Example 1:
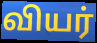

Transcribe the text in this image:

வியர்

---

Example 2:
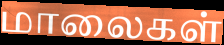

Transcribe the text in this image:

மாலைகள்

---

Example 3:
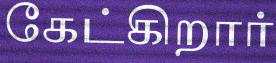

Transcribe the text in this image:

கேட்கிறார்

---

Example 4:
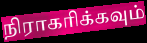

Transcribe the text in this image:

நிராகரிக்கவும்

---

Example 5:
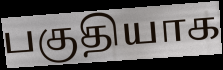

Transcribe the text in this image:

பகுதியாக